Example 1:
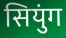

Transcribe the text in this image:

सियुंग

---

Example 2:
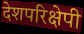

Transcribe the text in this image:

देशपरिक्षेपी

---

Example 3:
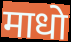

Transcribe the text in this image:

माधो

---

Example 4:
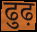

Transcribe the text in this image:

ढुढ़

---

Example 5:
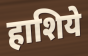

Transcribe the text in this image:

हाशिये